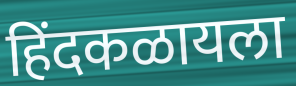
हिंदकळायला